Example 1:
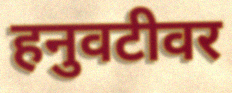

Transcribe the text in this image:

हनुवटीवर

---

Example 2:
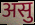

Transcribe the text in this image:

असु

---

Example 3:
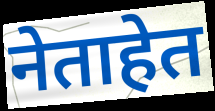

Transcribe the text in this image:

नेताहेत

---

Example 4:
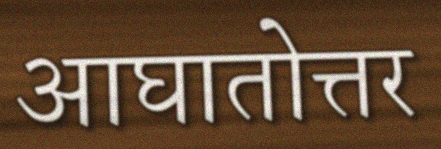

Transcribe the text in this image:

आघातोत्तर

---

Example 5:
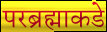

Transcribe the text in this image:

परब्रह्माकडे